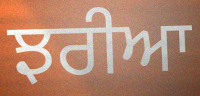
ਝਰੀਆ